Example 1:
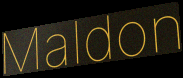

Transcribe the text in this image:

Maldon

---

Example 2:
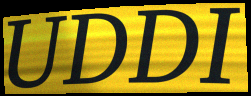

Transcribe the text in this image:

UDDI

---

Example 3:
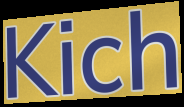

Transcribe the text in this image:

Kich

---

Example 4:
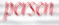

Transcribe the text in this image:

persen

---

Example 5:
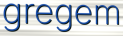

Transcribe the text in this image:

gregem